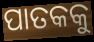
ପାତକକୁ